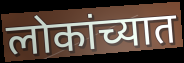
लोकांच्यात